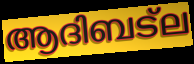
ആദിബട്ല